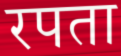
रपता